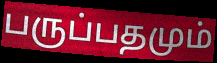
பருப்பதமும்